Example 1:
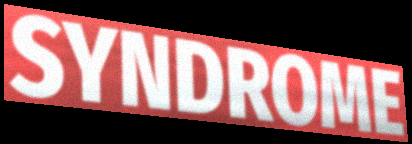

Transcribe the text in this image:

SYNDROME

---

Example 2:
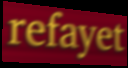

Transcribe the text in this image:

refayet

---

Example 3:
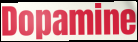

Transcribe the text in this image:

Dopamine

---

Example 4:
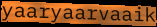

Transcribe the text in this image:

yaaryaarvaaik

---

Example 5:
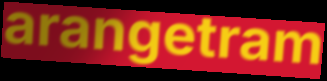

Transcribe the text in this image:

arangetram